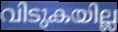
വിടുകയില്ല